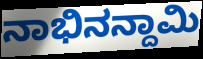
ನಾಭಿನನ್ದಾಮಿ